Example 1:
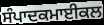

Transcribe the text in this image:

ਸੰਪਾਦਕਮਾਈਕਲ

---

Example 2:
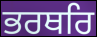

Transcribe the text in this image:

ਭਰਥਰਿ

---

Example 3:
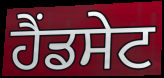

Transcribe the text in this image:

ਹੈਂਡਸੇਟ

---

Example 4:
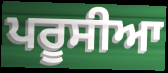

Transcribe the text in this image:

ਪਰੂਸੀਆ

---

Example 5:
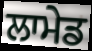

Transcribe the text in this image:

ਲਾਮੇਡ